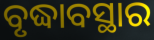
ବୃଦ୍ଧାବସ୍ଥାର